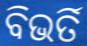
ବିଭର୍ତି